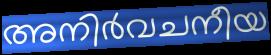
അനിർവചനീയ